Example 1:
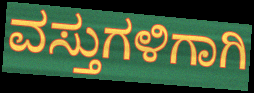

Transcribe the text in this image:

ವಸ್ತುಗಳಿಗಾಗಿ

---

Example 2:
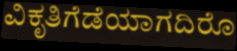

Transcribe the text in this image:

ವಿಕೃತಿಗೆಡೆಯಾಗದಿರೊ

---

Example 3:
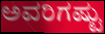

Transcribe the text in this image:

ಅವರಿಗಷ್ಟು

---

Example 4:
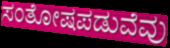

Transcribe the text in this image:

ಸಂತೋಷಪಡುವೆವು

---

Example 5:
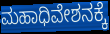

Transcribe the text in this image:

ಮಹಾಧಿವೇಶನಕ್ಕೆ